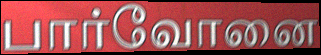
பார்வோனை